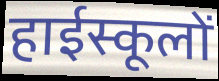
हाईस्कूलों